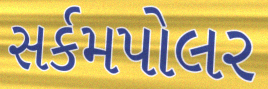
સર્કમપોલર